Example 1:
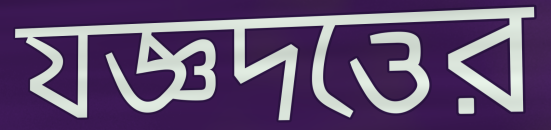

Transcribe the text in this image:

যজ্ঞদত্তের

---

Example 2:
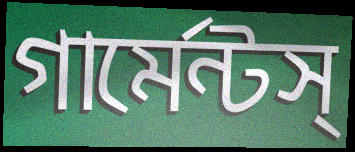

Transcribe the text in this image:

গার্মেন্টস্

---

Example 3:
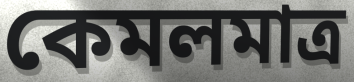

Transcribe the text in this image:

কেমলমাত্র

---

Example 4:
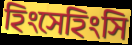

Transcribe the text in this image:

হিংসেহিংসি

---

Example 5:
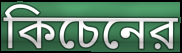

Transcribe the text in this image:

কিচেনের